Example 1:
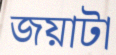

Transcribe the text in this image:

জয়াটা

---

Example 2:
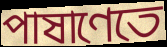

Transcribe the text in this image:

পাষাণেতে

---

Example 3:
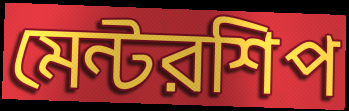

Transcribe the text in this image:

মেন্টরশিপ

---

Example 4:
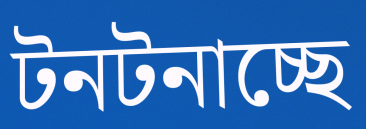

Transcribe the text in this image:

টনটনাচ্ছে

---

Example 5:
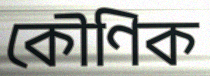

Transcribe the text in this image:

কৌণিক